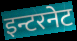
इन्टरनेट